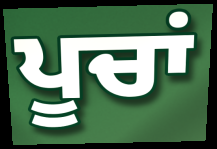
ਪੂਚਾਂ